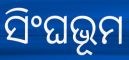
ସିଂଘଭୂମ